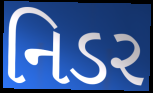
નિડર